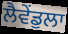
ਲੈਵੇਂਡੁਲਾ